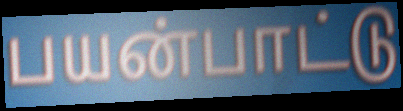
பயன்பாட்டு